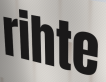
rihte